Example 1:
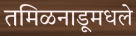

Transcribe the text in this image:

तमिळनाडूमधले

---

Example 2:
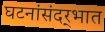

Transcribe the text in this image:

घटनांसंदर्भात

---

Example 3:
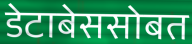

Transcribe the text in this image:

डेटाबेससोबत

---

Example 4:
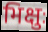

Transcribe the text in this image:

भिक्षुः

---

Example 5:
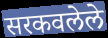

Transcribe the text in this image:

सरकवलेले